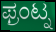
ಫ್ರಂಟ್ನ